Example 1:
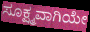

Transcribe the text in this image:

ಸೂಕ್ಷ್ಮವಾಗಿಯೇ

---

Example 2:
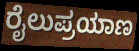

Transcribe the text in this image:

ರೈಲುಪ್ರಯಾಣ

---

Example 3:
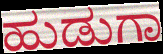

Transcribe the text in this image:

ಹುಡುಗಾ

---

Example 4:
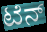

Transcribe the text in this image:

ಟೆನ್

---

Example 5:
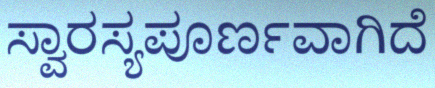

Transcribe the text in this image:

ಸ್ವಾರಸ್ಯಪೂರ್ಣವಾಗಿದೆ